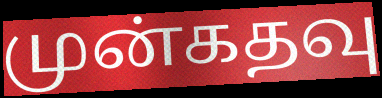
முன்கதவு